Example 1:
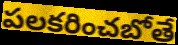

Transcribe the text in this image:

పలకరించబోతే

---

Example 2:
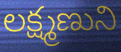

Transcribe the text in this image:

లక్ష్మణుని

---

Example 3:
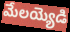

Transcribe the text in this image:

మేలయ్యెడి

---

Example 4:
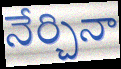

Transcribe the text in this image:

నేర్చినా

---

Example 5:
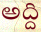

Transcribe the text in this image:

అద్ది